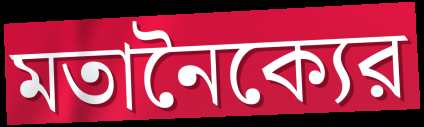
মতানৈক্যের